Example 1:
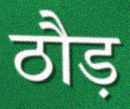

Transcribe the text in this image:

ठौड़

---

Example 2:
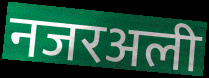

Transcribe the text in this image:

नजरअली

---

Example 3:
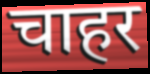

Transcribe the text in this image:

चाहर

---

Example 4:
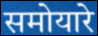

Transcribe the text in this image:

समोयारे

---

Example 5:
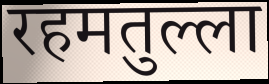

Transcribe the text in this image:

रहमतुल्ला